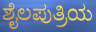
ಶೈಲಪುತ್ರಿಯ